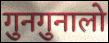
गुनगुनालो